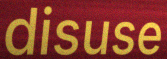
disuse